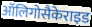
ऑलिगोसैकेराइड